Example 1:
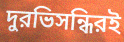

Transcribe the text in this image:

দুরভিসন্ধিরই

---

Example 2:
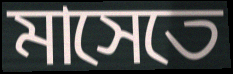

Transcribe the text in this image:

মাসেতে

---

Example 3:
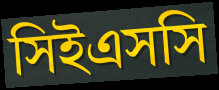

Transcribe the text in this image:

সিইএসসি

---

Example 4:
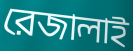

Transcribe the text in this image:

রেজালাই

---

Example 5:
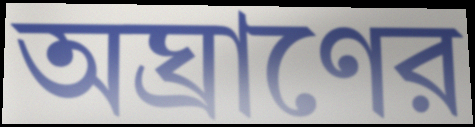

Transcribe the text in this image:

অঘ্রাণের